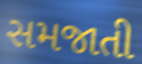
સમજાતી